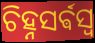
ଚିହ୍ନସର୍ଵସ୍ଵ